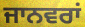
ਜਾਨਵਰਾਂ